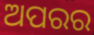
ଅପରର